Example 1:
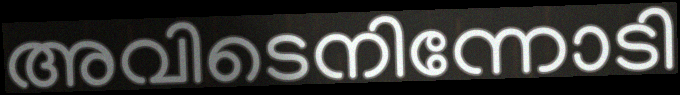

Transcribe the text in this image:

അവിടെനിന്നോടി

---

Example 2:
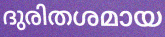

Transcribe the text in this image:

ദുരിതശമായ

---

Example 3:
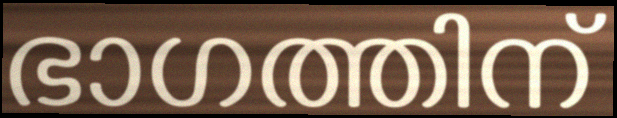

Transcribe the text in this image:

ഭാഗത്തിന്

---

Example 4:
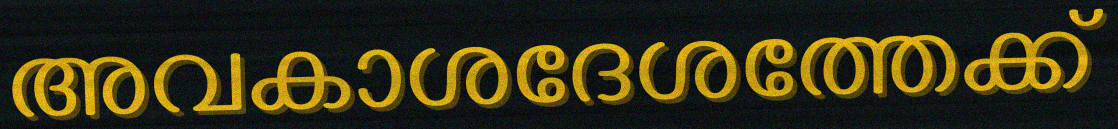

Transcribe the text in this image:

അവകാശദേശത്തേക്ക്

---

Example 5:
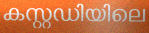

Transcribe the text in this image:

കസ്റ്റഡിയിലെ